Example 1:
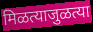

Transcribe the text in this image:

मिळत्याजुळत्या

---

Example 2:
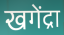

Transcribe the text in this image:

खगेंद्रा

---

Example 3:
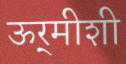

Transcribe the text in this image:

ऊर्मीशी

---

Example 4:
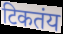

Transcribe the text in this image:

टिकतंय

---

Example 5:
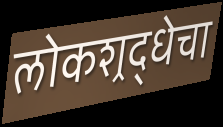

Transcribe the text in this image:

लोकश्रद्धेचा